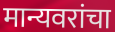
मान्यवरांचा